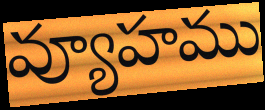
వ్యూహము